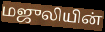
மஜுலியின்